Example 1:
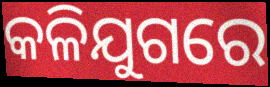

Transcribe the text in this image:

କଳିଯୁଗରେ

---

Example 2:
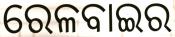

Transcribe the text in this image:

ରେଳବାଇର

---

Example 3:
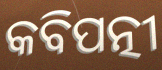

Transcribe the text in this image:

କବିପତ୍ନୀ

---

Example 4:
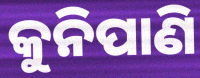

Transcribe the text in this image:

କୁନିପାଣି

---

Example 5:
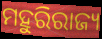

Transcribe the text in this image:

ମହୁରିରାଜ୍ୟ